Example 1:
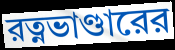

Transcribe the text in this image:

রত্নভাণ্ডারের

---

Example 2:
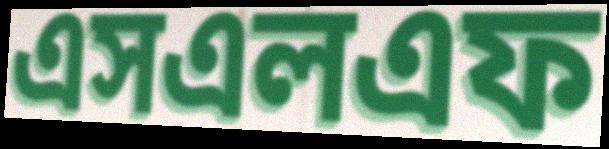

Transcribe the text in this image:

এসএলএফ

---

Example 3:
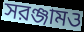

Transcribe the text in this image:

সরঞ্জামও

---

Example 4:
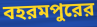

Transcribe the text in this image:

বহরমপুরের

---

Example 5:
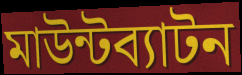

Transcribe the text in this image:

মাউন্টব্যাটন